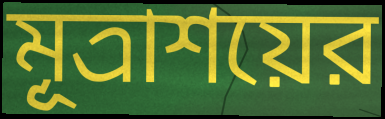
মূত্রাশয়ের